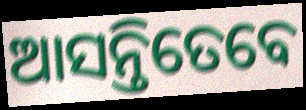
ଆସନ୍ତିତେବେ